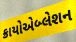
ક્રાયોએબ્લેશન